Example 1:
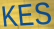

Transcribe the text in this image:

KES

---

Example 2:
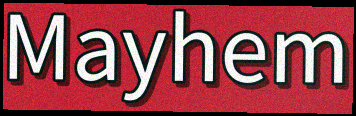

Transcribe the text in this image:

Mayhem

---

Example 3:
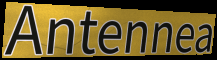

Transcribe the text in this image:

Antennea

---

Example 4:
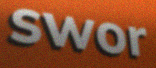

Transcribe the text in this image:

swor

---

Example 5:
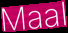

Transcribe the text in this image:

Maal